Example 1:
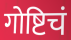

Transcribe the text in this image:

गोष्टिचं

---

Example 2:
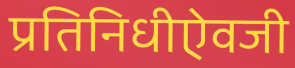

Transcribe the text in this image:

प्रतिनिधीऐवजी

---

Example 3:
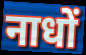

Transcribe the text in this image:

नाधों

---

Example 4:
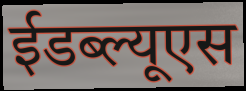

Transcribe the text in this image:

ईडब्ल्यूएस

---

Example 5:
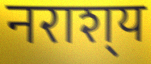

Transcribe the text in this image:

नराश्य